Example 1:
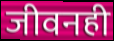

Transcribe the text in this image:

जीवनही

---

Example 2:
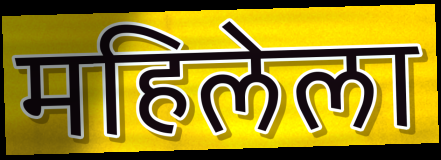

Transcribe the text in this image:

महिलेला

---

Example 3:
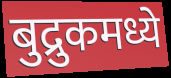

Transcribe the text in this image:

बुद्रुकमध्ये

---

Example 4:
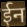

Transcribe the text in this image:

ईन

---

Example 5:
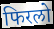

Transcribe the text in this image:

फिरलो